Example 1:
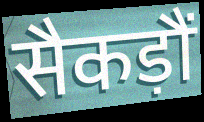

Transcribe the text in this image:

सैकड़ौं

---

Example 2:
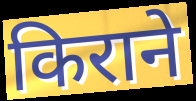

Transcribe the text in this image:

किराने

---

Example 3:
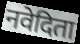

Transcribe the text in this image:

नवेदिता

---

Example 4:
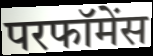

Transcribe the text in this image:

परफॉमेंस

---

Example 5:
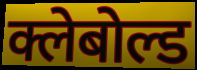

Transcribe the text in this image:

क्लेबोल्ड